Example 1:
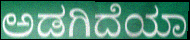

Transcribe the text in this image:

ಅಡಗಿದೆಯಾ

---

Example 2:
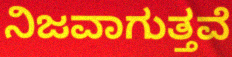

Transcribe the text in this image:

ನಿಜವಾಗುತ್ತವೆ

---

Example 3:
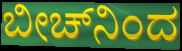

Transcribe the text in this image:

ಬೀಚ್‌ನಿಂದ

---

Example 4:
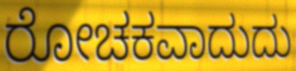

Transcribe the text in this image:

ರೋಚಕವಾದುದು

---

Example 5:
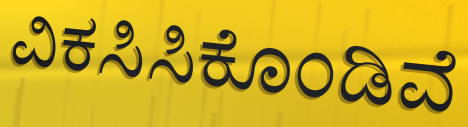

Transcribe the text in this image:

ವಿಕಸಿಸಿಕೊಂಡಿವೆ